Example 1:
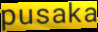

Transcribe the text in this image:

pusaka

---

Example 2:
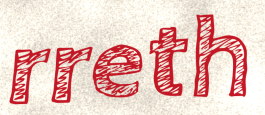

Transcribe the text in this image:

rreth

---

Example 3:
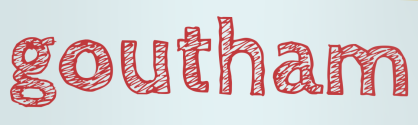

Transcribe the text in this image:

goutham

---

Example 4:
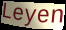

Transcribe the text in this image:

Leyen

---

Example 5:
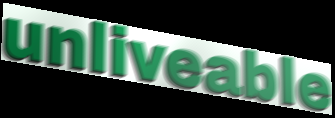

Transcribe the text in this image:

unliveable